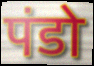
पंडो